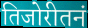
तिजोरीतनं